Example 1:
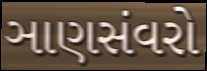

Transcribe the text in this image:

ઞાણસંવરો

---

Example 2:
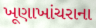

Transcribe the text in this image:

ખૂણાખાંચરાના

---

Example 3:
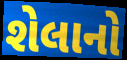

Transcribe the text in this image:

શેલાનો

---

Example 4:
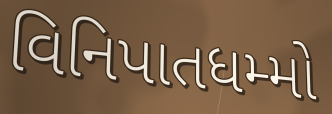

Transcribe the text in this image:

વિનિપાતધમ્મો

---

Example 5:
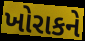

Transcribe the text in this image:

ખોરાકને